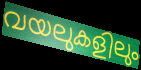
വയലുകളിലും